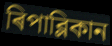
ৰিপাব্লিকান